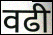
वढी